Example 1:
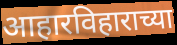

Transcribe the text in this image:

आहारविहाराच्या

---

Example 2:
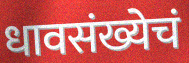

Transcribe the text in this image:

धावसंख्येचं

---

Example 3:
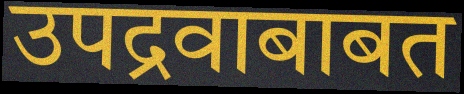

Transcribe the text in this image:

उपद्रवाबाबत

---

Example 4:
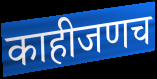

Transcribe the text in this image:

काहीजणच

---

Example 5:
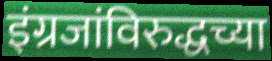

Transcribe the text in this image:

इंग्रजांविरुद्धच्या